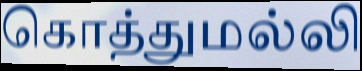
கொத்துமல்லி